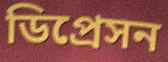
ডিপ্রেসন